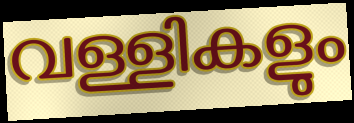
വള്ളികളും